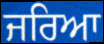
ਜਰਿਆ